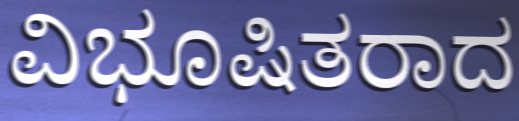
ವಿಭೂಷಿತರಾದ